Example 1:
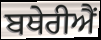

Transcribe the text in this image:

ਬਥੇਰੀਐਂ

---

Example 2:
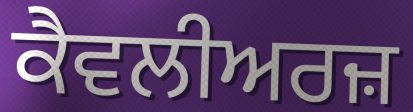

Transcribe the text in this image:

ਕੈਵਲੀਅਰਜ਼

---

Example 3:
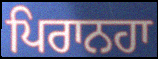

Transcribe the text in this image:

ਪਿਰਾਨਹਾ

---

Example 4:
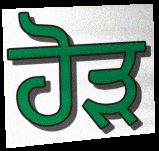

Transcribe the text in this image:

ਹੋੜ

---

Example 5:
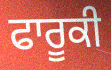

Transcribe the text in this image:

ਫਾਰੂਕੀ